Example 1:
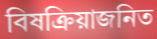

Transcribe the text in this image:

বিষক্রিয়াজনিত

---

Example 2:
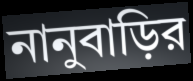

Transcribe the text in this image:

নানুবাড়ির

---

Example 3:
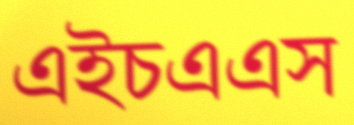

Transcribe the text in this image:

এইচএএস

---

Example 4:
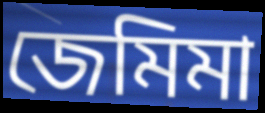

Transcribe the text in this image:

জেমিমা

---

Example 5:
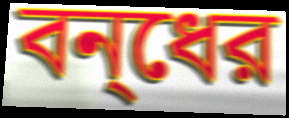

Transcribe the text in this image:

বন্‌ধের